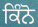
ਕਿੰਨੋ